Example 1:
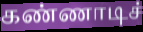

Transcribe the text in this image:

கண்ணாடிச்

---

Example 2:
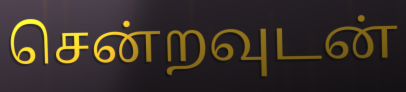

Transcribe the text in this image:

சென்றவுடன்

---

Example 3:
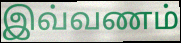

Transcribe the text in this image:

இவ்வணம்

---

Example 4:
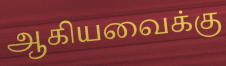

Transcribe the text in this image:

ஆகியவைக்கு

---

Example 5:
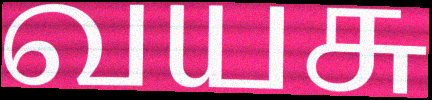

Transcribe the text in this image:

வயசு